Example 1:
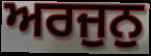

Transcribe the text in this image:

ਅਰਜੁਨੁ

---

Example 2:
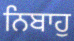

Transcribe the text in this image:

ਨਿਬਾਹੁ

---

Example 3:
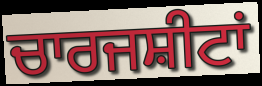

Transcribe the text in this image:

ਚਾਰਜਸ਼ੀਟਾਂ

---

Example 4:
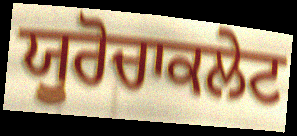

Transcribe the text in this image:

ਯੂਰੋਚਾਕਲੇਟ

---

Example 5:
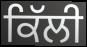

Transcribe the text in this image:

ਕਿੱਲੀ